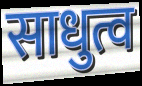
साधुत्व